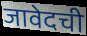
जावेदची